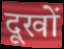
दूखों